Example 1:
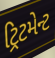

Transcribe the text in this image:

ટ્રિટમેન્ટ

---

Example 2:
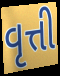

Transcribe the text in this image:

વૃત્તી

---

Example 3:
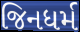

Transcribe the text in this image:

જિનધર્મ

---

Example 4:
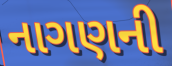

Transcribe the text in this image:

નાગણની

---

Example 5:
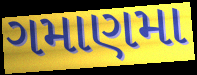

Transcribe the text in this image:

ગમાણમા